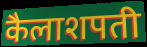
कैलाशपती